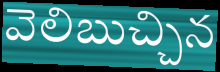
వెలిబుచ్చిన